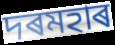
দৰমহাৰ